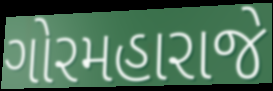
ગોરમહારાજે